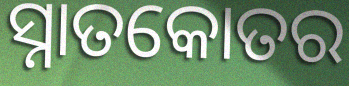
ସ୍ନାତକୋତର